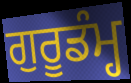
ਗੁਰੂਡੰਮ੍ਹ